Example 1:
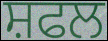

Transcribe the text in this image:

ਸ਼ਫਲ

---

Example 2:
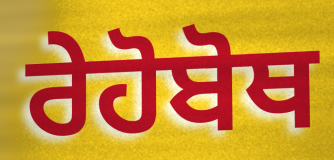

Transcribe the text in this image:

ਰੇਹੋਬੋਥ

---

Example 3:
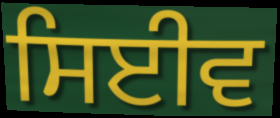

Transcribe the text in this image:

ਸਿਈਵ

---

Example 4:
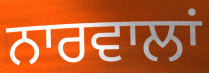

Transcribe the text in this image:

ਨਾਰਵਾਲਾਂ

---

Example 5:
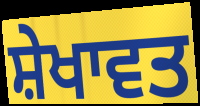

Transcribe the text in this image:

ਸ਼ੇਖਾਵਤ